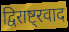
द्विराष्ट्रवाद